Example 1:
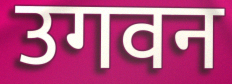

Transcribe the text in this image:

उगवन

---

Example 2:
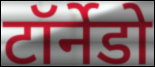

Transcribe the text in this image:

टॉर्नेडो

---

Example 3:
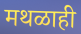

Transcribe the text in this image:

मथळाही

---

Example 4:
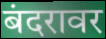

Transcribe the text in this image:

बंदरावर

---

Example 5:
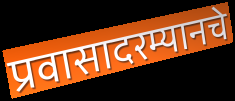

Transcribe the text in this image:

प्रवासादरम्यानचे